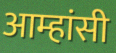
आम्हांसी